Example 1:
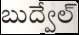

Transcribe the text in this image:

బుద్వేల్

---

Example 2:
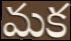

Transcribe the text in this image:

మక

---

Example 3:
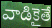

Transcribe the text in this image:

వాడికైతే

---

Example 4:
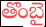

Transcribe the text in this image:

తొంబై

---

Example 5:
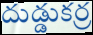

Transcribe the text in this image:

దుడ్డుకర్ర